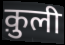
क़ुली